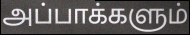
அப்பாக்களும்